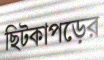
ছিটকাপড়ের